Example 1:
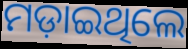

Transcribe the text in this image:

ମଡ଼ାଇଥିଲେ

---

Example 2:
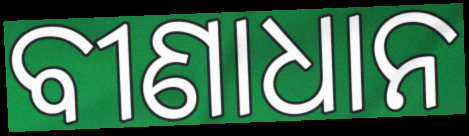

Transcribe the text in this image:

ବୀଣାଧାନ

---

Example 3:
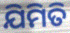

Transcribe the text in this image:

ଯିମିତି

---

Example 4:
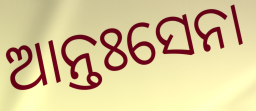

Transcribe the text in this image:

ଆନ୍ତଃସେନା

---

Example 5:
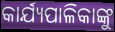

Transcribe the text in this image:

କାର୍ଯ୍ୟପାଳିକାଙ୍କୁ